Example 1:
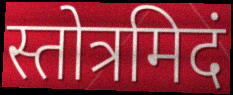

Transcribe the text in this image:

स्तोत्रमिदं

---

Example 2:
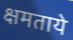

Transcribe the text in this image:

क्षमताये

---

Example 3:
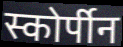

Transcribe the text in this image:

स्कोर्पीन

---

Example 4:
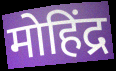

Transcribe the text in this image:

मोहिंद्र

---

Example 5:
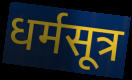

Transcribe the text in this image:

धर्मसूत्र